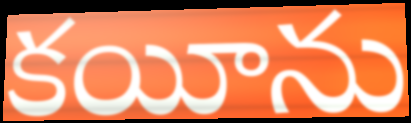
కయీను